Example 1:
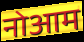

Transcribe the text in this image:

नोआम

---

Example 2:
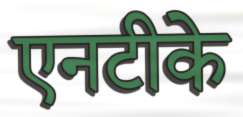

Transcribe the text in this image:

एनटीके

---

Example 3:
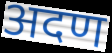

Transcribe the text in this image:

अदण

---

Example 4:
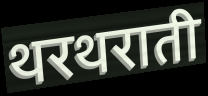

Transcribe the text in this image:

थरथराती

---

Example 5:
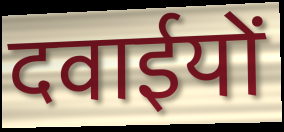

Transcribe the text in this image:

दवाईयों